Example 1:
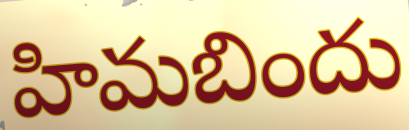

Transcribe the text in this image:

హిమబిందు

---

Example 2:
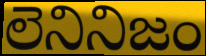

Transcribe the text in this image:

లెనినిజం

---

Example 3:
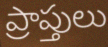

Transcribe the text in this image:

ప్రాప్తులు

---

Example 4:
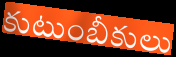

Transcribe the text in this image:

కుటుంబీకులు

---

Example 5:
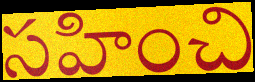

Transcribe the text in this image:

సహించి